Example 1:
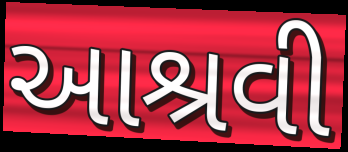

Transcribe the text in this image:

આશ્રવી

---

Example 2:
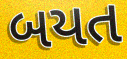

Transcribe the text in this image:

બયત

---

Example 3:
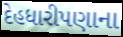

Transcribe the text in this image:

દેહધારીપણાના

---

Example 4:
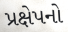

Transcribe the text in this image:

પ્રક્ષેપનો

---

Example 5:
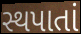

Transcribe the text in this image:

સ્થપાતાં